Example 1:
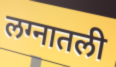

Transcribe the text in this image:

लग्नातली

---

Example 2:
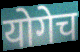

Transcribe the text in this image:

योगेच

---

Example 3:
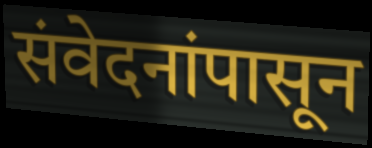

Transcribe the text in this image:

संवेदनांपासून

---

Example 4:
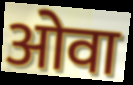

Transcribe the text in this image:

ओवा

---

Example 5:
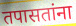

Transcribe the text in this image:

तपासतांना